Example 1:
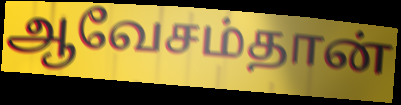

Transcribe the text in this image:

ஆவேசம்தான்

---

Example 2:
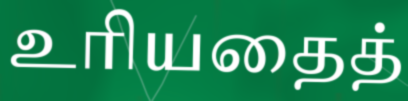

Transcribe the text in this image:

உரியதைத்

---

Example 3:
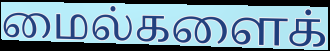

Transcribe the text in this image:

மைல்களைக்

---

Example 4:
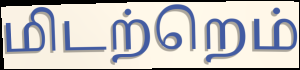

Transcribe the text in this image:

மிடற்றெம்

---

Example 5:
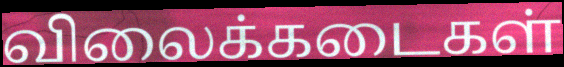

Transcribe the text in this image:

விலைக்கடைகள்